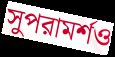
সুপরামর্শও